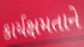
કાર્યક્ષમતાને